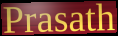
Prasath